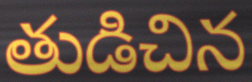
తుడిచిన